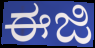
ಈಜಿ